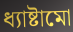
ধ্যাষ্টামো